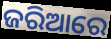
ଜରିଆରେ